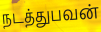
நடத்துபவன்